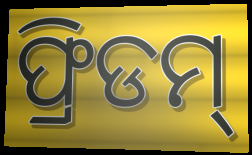
ଫ୍ରିଡମ୍